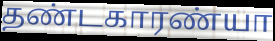
தண்டகாரண்யா